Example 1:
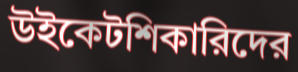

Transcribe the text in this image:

উইকেটশিকারিদের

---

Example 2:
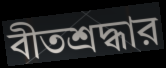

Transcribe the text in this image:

বীতশ্রদ্ধার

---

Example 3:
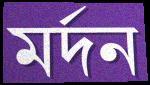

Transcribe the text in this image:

মর্দন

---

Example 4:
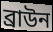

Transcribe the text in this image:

ব্রাউন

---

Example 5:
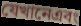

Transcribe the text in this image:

যেখানেএবং